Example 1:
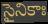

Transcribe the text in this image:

సైనికాః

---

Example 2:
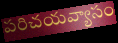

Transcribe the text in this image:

పరిచయవ్యాసం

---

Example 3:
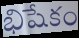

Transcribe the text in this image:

భిషేకం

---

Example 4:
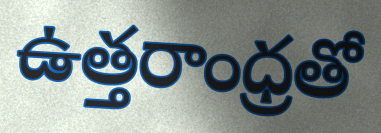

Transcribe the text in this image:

ఉత్తరాంధ్రతో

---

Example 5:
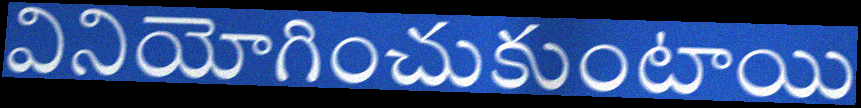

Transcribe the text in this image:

వినియోగించుకుంటాయి